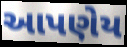
આપણેય